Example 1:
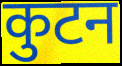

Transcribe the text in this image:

कुटन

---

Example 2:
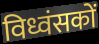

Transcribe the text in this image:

विध्वंसकों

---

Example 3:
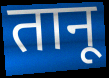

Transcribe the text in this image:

तानू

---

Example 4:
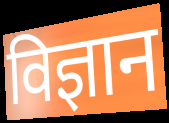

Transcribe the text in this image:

विज्ञान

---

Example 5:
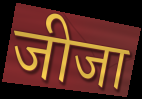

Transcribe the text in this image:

जीजा